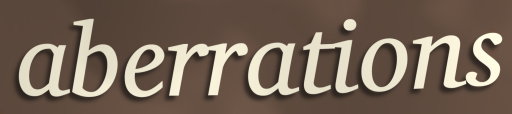
aberrations